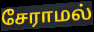
சேராமல்